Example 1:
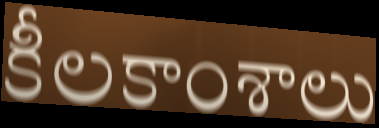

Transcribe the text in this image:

కీలకాంశాలు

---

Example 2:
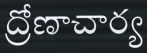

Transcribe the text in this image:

ద్రోణాచార్య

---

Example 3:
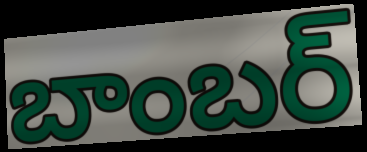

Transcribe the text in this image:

బాంబర్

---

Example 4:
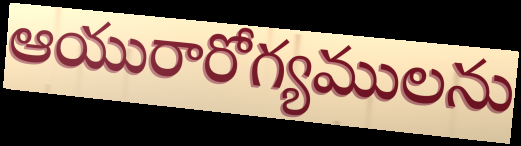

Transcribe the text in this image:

ఆయురారోగ్యములను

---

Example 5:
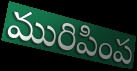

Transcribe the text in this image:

మురిపింప